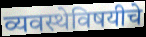
व्यवस्थेविषयीचे